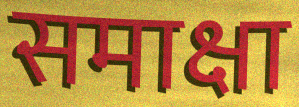
समाक्षा